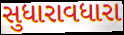
સુધારાવધારા